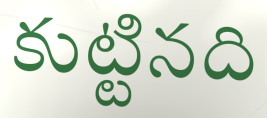
కుట్టినది